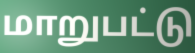
மாறுபட்டு